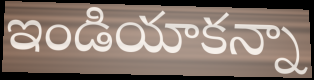
ఇండియాకన్నా